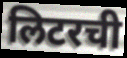
लिटरची